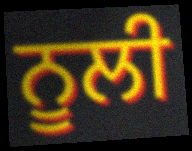
ਨੂਲੀ